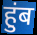
हुंब